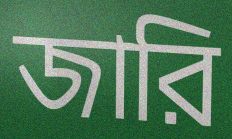
জারি